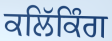
ਕਲਿੱਕਿੰਗ